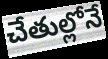
చేతుల్లోనే